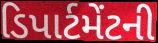
ડિપાર્ટમેંટની